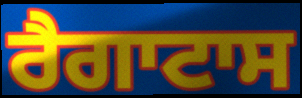
ਰੈਗਾਟਾਸ